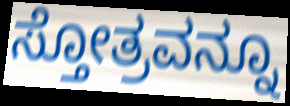
ಸ್ತೋತ್ರವನ್ನೂ